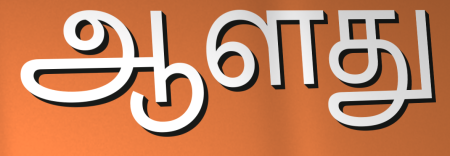
ஆளது